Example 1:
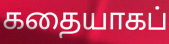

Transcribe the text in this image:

கதையாகப்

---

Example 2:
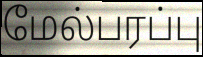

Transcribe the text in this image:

மேல்பரப்பு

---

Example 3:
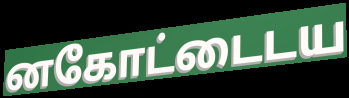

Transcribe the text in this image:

னகோட்டைடய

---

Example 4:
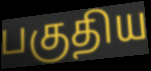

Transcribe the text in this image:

பகுதிய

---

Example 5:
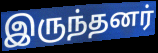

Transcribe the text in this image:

இருந்தனர்